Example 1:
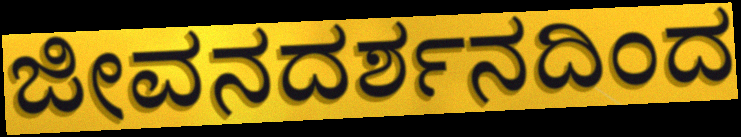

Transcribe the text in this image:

ಜೀವನದರ್ಶನದಿಂದ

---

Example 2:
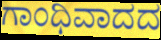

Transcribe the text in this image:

ಗಾಂಧಿವಾದದ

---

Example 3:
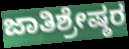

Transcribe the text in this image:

ಜಾತಿಶ್ರೇಷ್ಠರ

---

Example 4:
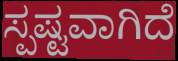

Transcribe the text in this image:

ಸ್ಪಷ್ಟವಾಗಿದೆ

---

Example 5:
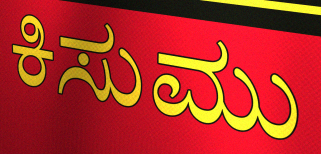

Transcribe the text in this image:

ಕಿಸುಮು